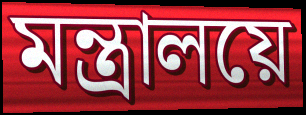
মন্ত্ৰালয়ে